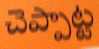
చెప్పాట్ట